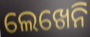
ଲେଖେନି